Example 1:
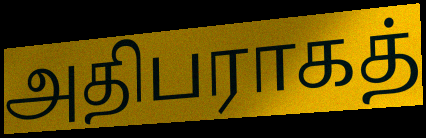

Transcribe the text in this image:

அதிபராகத்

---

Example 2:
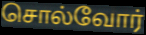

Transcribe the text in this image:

சொல்வோர்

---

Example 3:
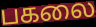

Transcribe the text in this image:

பகலை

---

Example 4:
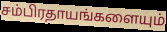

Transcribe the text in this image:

சம்பிரதாயங்களையும்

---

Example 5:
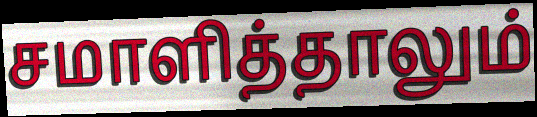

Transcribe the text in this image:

சமாளித்தாலும்